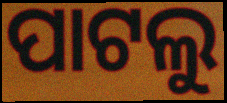
ପାଟଲୁ